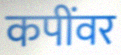
कपींवर